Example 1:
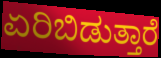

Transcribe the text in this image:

ಏರಿಬಿಡುತ್ತಾರೆ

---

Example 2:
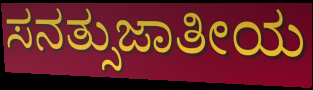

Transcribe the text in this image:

ಸನತ್ಸುಜಾತೀಯ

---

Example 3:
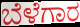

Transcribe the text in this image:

ಬೆಳೆಗಾರ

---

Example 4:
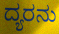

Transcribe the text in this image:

ದ್ಯರನು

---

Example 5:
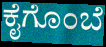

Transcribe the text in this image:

ಕೈಗೊಂಬೆ